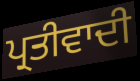
ਪ੍ਰਤੀਵਾਦੀ